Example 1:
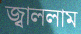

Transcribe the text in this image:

জ্বাললাম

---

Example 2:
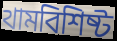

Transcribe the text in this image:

থামবিশিষ্ট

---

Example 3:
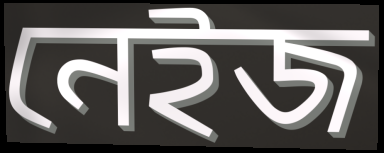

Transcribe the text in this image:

নেইজ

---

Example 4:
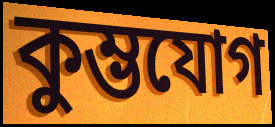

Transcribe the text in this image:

কুম্ভযোগ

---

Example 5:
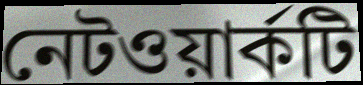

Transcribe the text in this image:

নেটওয়ার্কটি